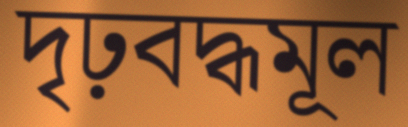
দৃঢ়বদ্ধমূল